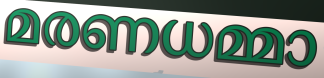
മരണധമ്മാ